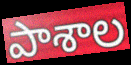
పాశాల